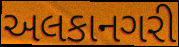
અલકાનગરી